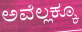
ಅವೆಲ್ಲಕ್ಕೂ